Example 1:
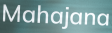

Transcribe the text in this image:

Mahajana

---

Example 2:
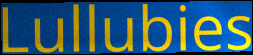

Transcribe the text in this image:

Lullubies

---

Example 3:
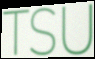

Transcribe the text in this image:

TSU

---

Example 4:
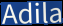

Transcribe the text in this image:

Adila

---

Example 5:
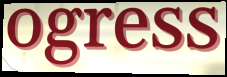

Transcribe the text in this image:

ogress